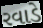
રવાડે